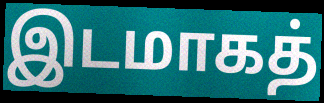
இடமாகத்